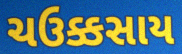
ચઉક્કસાય